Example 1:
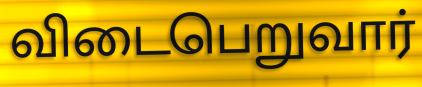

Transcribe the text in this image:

விடைபெறுவார்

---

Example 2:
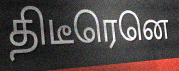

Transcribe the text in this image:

திடீரெனெ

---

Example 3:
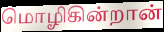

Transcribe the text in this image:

மொழிகின்றான்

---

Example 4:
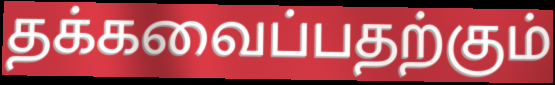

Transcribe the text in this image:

தக்கவைப்பதற்கும்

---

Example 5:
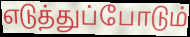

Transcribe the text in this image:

எடுத்துப்போடும்